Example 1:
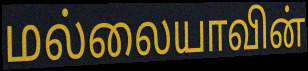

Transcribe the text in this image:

மல்லையாவின்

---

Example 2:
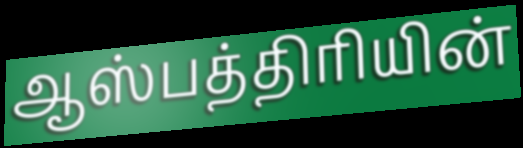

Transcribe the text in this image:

ஆஸ்பத்திரியின்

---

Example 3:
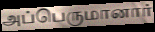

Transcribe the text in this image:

அப்பெருமானார்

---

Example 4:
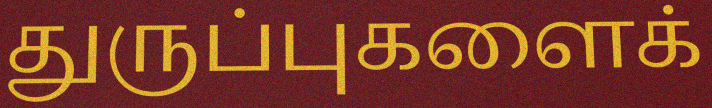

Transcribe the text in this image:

துருப்புகளைக்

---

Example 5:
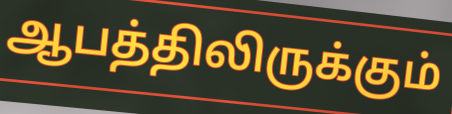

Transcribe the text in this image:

ஆபத்திலிருக்கும்